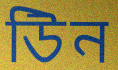
উিন